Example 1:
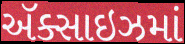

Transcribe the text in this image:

ઍક્સાઇઝમાં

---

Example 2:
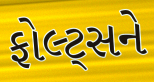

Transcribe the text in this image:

ફોલ્ટ્સને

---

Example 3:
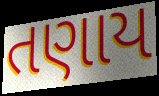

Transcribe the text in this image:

તણાય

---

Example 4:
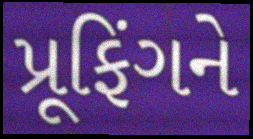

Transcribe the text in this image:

પ્રૂફિંગને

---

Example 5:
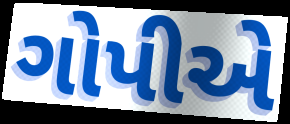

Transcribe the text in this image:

ગોપીએ